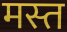
मस्‍त